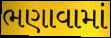
ભણાવામાં